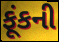
ફૂંકની